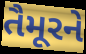
તૈમૂરને